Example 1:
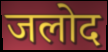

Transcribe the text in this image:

जलोद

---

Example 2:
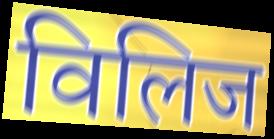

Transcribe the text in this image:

विलिज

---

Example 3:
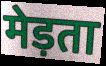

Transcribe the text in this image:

मेड़ता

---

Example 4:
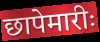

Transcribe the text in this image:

छापेमारीः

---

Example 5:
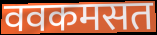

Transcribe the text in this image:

ववकमसत